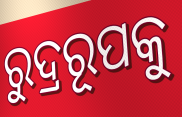
ରୁଦ୍ରରୂପକୁ